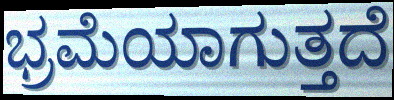
ಭ್ರಮೆಯಾಗುತ್ತದೆ